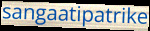
sangaatipatrike